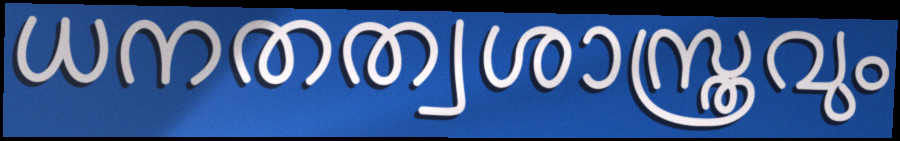
ധനതത്വശാസ്ത്രവും